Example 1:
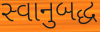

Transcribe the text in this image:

સ્વાનુબદ્ધ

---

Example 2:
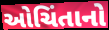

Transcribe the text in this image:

ઓચિંતાનો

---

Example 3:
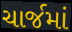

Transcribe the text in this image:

ચાર્જમાં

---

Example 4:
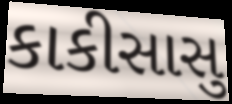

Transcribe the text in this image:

કાકીસાસુ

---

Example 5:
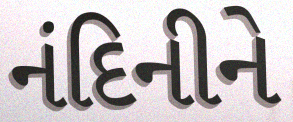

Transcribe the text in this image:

નંદિનીને